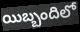
యిబ్బందిలో